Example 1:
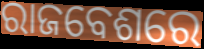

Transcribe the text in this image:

ରାଜବେଶରେ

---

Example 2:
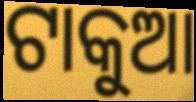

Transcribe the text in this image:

ଟାକୁଆ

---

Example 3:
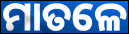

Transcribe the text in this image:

ମାତଳେ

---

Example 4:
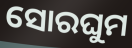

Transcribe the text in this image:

ସୋରଘୁମ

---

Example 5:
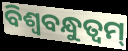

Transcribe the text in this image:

ବିଶ୍ଵବନ୍ଧୁତ୍ଵମ୍